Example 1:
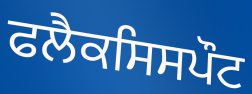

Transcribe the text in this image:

ਫਲੈਕਸਿਸਪੌਟ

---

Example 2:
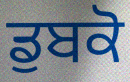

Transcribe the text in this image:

ਡੁਬਕੋ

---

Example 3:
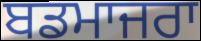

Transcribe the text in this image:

ਬਡਮਾਜਰਾ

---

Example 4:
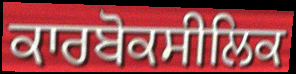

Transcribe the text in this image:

ਕਾਰਬੋਕਸੀਲਿਕ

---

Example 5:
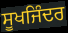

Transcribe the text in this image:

ਸੂਖਜਿੰਦਰ